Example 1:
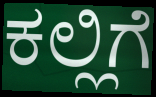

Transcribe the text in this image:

ಕಲ್ಲಿಗೆ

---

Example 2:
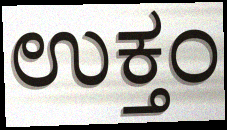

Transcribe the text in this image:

ಉಕ್ತಂ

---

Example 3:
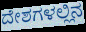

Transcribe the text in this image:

ದೇಶಗಳಲ್ಲಿನ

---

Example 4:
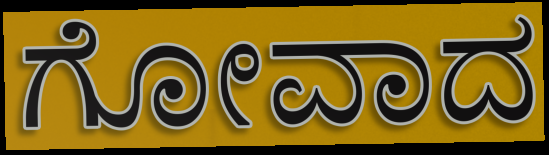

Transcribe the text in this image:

ಗೋವಾದ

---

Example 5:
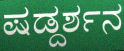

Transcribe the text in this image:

ಷಡ್ದರ್ಶನ